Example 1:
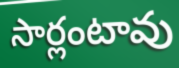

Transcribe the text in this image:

సార్లంటావు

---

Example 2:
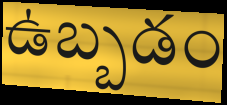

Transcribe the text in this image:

ఉబ్బడం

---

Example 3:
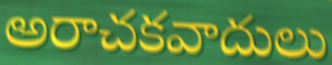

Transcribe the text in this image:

అరాచకవాదులు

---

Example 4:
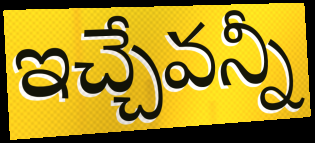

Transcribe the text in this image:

ఇచ్చేవన్నీ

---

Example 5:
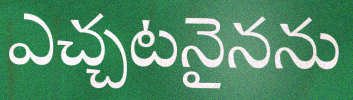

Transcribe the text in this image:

ఎచ్చటనైనను